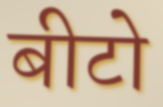
बीटो